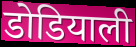
डोडियाली